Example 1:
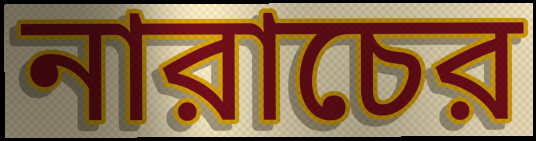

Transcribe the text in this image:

নারাচের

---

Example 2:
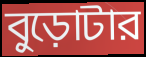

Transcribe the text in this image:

বুড়োটার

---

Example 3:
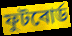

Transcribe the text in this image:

ফুটবোর্ড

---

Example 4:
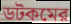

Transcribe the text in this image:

ডটকমের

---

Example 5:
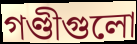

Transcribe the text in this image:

গণ্ডীগুলো